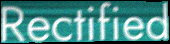
Rectified